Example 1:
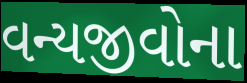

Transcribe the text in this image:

વન્યજીવોના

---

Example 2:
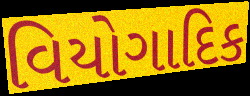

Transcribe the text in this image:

વિયોગાદિક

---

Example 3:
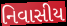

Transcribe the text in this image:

નિવાસીય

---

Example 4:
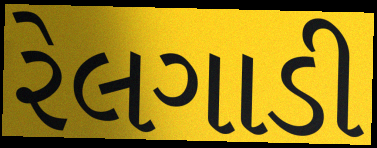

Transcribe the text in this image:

રેલગાડી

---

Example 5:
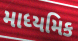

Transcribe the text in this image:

માધ્યમિક